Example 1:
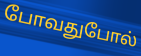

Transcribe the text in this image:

போவதுபோல்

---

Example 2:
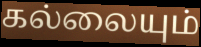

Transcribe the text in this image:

கல்லையும்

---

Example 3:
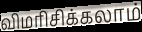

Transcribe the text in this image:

விமரிசிக்கலாம்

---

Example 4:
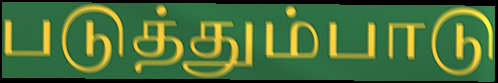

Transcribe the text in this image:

படுத்தும்பாடு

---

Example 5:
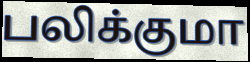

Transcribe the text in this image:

பலிக்குமா